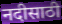
नदीसाठी